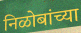
निळोबांच्या